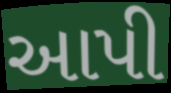
આપી